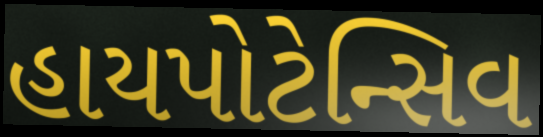
હાયપોટેન્સિવ